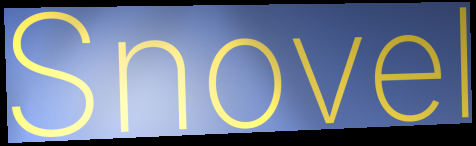
Snovel